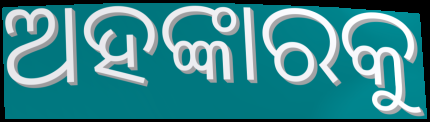
ଅହଙ୍କାରକୁ